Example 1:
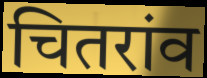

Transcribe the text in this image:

चितरांव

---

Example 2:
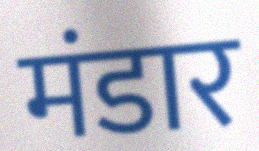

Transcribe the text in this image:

मंडार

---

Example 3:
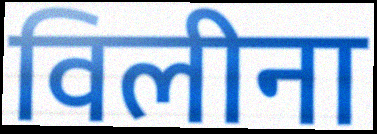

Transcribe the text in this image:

विलीना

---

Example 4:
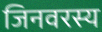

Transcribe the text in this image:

जिनवरस्य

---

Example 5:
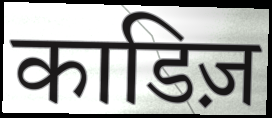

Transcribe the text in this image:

काडिज़